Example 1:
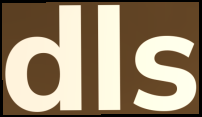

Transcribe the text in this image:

dls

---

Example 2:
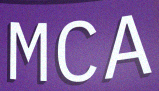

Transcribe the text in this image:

MCA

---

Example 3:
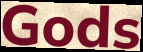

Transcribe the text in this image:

Gods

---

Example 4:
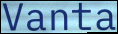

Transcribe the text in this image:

Vanta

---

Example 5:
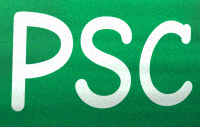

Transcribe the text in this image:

PSC